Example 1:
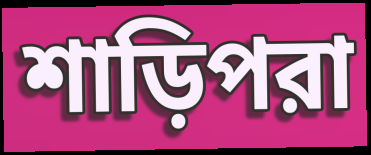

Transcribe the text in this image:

শাড়িপরা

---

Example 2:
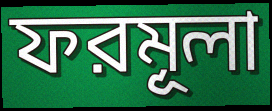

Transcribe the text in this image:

ফরমূলা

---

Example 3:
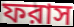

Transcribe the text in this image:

ফরাস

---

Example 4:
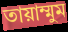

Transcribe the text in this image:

তায়াম্মুম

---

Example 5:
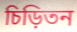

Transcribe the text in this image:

চিড়িতন